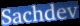
Sachdev